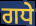
ਗਧੇ